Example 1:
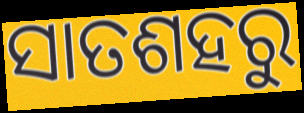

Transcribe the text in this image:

ସାତଶହରୁ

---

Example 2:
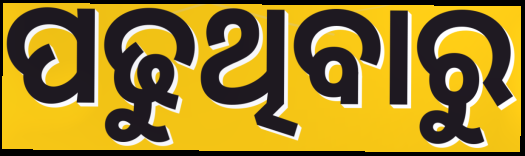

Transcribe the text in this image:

ପଢୁଥିବାରୁ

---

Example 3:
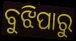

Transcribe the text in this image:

ବୁଝିପାରୁ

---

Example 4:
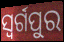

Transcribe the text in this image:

ସ୍ଵର୍ଗପୁର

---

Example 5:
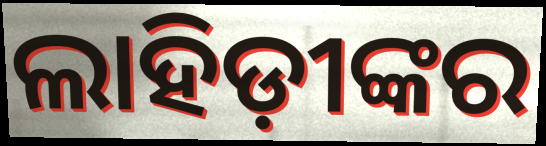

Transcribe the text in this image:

ଲାହିଡ଼ୀଙ୍କର